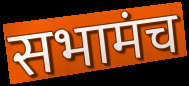
सभामंच